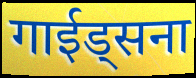
गाईड्सना